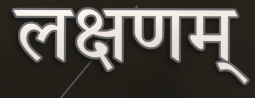
लक्षणम्